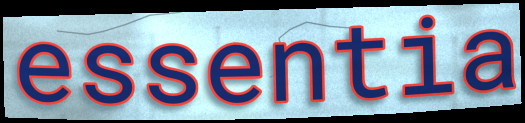
essentia